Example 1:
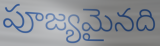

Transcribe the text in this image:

పూజ్యమైనది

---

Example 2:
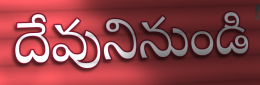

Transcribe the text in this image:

దేవునినుండి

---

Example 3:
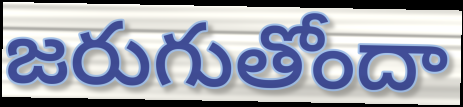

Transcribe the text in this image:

జరుగుతోందా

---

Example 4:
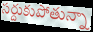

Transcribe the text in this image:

సర్దుకుపోతున్నా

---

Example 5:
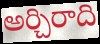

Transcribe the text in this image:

అర్చిరాది